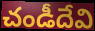
చండీదేవి